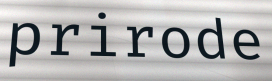
prirode